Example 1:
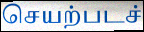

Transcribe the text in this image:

செயற்படச்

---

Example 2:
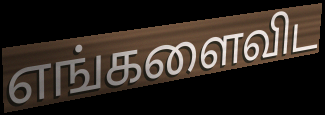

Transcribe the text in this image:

எங்களைவிட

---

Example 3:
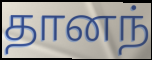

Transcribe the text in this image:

தானந்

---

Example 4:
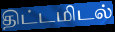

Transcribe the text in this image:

திட்டமிடல்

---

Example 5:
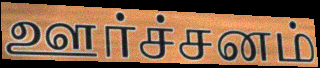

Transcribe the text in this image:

ஊர்ச்சனம்